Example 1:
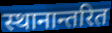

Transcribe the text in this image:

स्थानान्तरित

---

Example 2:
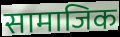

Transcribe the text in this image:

सामाजिक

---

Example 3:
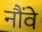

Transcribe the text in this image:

नौंवे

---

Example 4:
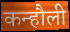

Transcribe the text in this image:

कन्हौली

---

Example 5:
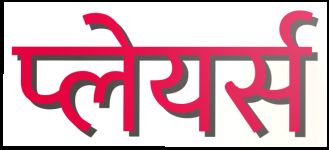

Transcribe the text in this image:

प्‍लेयर्स